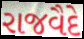
રાજવૈદે